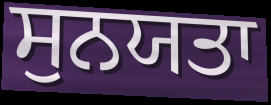
ਸੁਨਯਤਾ